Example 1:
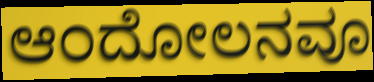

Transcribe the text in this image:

ಆಂದೋಲನವೂ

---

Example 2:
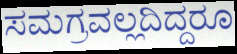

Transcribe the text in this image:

ಸಮಗ್ರವಲ್ಲದಿದ್ದರೂ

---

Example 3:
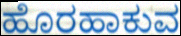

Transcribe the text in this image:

ಹೊರಹಾಕುವ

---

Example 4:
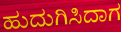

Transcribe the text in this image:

ಹುದುಗಿಸಿದಾಗ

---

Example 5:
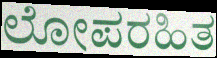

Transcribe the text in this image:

ಲೋಪರಹಿತ